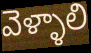
వెళ్ళాలి